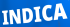
INDICA